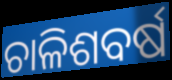
ଚାଳିଶବର୍ଷ